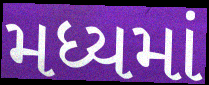
મધ્યમાં